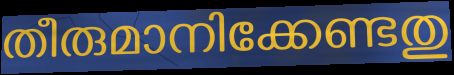
തീരുമാനിക്കേണ്ടതു